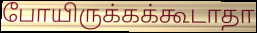
போயிருக்கக்கூடாதா